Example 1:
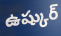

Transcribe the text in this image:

ఉష్కుర్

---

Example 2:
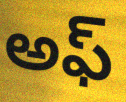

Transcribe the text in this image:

అఫ్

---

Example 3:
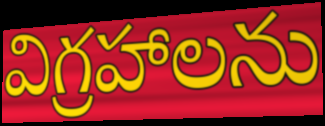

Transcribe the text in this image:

విగ్రహాలను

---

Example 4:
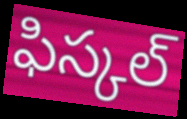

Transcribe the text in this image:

ఫిస్కల్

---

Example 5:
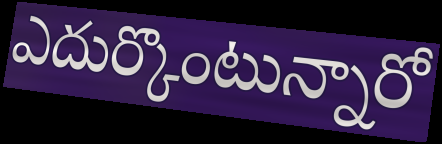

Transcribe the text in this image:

ఎదుర్కొంటున్నారో